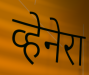
व्हेनेरा